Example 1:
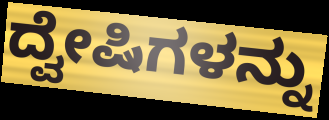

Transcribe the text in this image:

ದ್ವೇಷಿಗಳನ್ನು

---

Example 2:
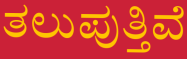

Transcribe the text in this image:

ತಲುಪುತ್ತಿವೆ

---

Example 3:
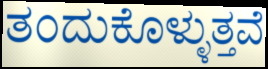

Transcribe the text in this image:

ತಂದುಕೊಳ್ಳುತ್ತವೆ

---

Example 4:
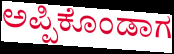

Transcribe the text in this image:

ಅಪ್ಪಿಕೊಂಡಾಗ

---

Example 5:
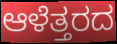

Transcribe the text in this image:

ಆಳೆತ್ತರದ